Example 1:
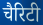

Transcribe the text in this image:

चैरिटी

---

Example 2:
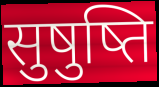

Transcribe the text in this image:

सुषुष्ति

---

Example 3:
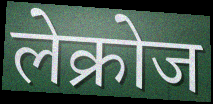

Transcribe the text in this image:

लेक्रोज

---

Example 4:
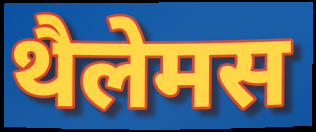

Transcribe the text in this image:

थैलेमस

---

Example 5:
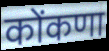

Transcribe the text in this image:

कोंकणा